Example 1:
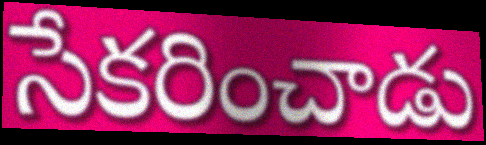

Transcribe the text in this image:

సేకరించాడు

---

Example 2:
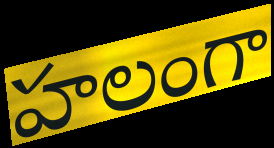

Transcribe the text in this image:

హలంగా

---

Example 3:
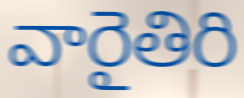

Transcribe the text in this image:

వారైతిరి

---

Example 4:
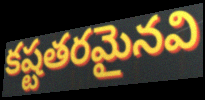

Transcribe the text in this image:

కష్టతరమైనవి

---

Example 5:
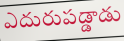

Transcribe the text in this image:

ఎదురుపడ్డాడు